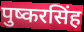
पुष्करसिंह